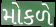
મોકળે